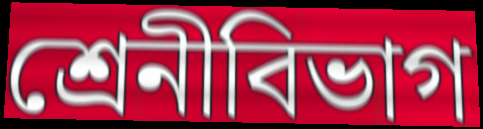
শ্রেনীবিভাগ